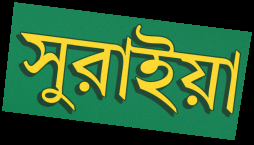
সুরাইয়া